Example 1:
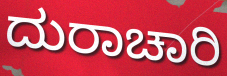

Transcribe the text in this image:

ದುರಾಚಾರಿ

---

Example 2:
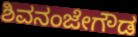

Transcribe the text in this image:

ಶಿವನಂಜೇಗೌಡ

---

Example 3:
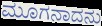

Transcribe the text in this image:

ಮೂಗನಾದನು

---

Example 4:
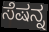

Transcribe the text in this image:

ಸೆಷನ್ನ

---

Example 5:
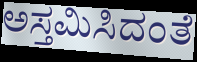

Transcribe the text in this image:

ಅಸ್ತಮಿಸಿದಂತೆ